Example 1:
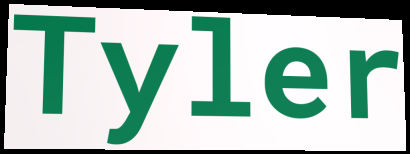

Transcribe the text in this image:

Tyler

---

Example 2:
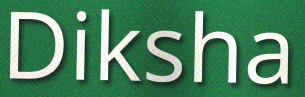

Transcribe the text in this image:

Diksha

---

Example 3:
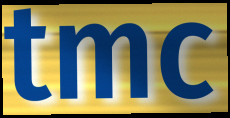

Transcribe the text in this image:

tmc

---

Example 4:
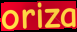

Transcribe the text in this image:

oriza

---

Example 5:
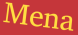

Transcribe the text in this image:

Mena